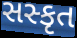
સસ્કૃત